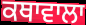
ਕਥਾਵਾਲਾ